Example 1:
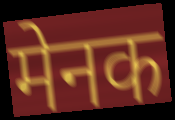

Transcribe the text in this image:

मेनक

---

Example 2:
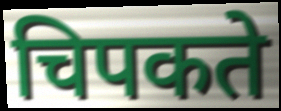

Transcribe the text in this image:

चिपकते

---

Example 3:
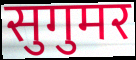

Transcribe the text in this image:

सुगुमर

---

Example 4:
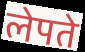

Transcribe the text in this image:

लेपते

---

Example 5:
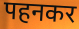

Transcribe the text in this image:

पहनकर